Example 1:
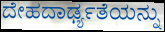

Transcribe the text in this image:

ದೇಹದಾರ್ಢ್ಯತೆಯನ್ನು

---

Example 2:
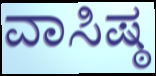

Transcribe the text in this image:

ವಾಸಿಷ್ಠ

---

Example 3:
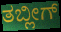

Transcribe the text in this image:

ತಬ್ಲೀಗ್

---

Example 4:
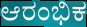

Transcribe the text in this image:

ಆರಂಭಿಕ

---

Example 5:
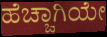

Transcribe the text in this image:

ಹೆಚ್ಚಾಗಿಯೇ